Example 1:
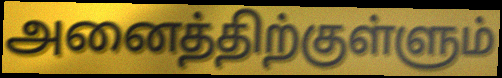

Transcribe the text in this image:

அனைத்திற்குள்ளும்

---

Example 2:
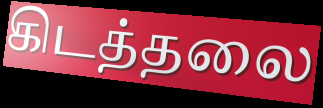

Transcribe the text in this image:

கிடத்தலை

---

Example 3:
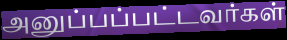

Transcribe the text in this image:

அனுப்பப்பட்டவர்கள்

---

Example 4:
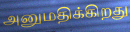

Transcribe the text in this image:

அனுமதிக்கிறது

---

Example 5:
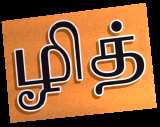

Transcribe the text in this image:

ழித்